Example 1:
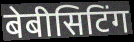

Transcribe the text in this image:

बेबीसिटिंग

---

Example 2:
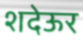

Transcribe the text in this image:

शदेऊर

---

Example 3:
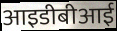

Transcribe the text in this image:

आइडीबीआई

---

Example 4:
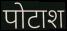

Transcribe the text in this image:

पोटाश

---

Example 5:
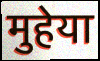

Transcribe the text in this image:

मुहेया